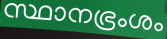
സ്ഥാനഭ്രംശം